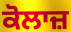
ਕੋਲਾਜ਼